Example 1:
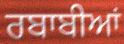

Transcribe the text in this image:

ਰਬਾਬੀਆਂ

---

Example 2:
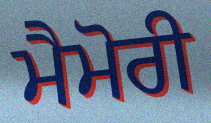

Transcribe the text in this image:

ਮੈਮੋਰੀ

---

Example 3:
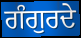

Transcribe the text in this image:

ਗੰਗੁਰਦੇ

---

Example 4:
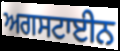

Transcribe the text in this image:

ਅਗਸਟਾਈਨ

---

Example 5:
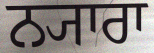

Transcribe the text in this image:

ਨ੍ਯਾਰਾ